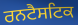
ਰਨਟੈਸਟਿਕ